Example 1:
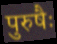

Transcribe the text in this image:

पुरुषैः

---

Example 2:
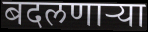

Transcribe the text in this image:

बदलणाऱ्या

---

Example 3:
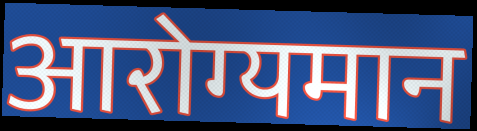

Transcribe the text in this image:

आरोग्यमान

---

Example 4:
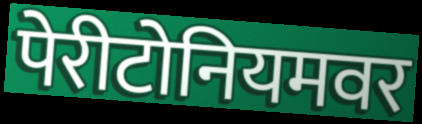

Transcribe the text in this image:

पेरीटोनियमवर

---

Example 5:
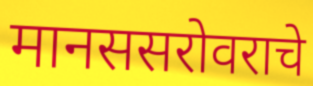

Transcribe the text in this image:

मानससरोवराचे